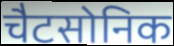
चैटसोनिक